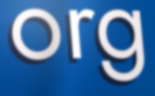
org